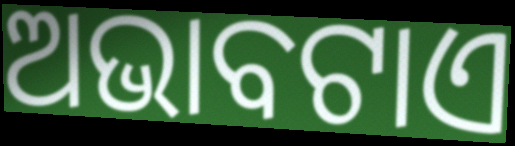
ଅଭାବଟାଏ